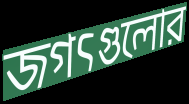
জগৎগুলোর